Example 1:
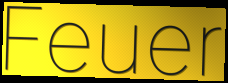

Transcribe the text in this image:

Feuer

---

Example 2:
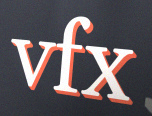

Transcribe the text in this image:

vfx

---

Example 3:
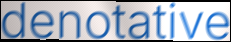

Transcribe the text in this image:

denotative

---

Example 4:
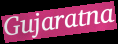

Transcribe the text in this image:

Gujaratna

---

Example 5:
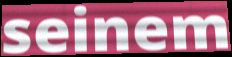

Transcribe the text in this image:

seinem